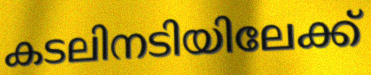
കടലിനടിയിലേക്ക്